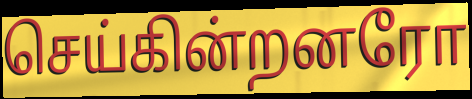
செய்கின்றனரோ